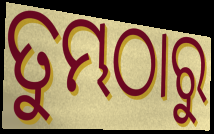
ତୁମ୍ଭଠାରୁ